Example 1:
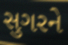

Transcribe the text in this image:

સુગરને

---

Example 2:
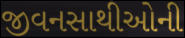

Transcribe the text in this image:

જીવનસાથીઓની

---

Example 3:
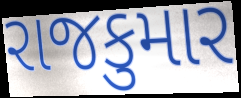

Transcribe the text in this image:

રાજકુમાર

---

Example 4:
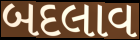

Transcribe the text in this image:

બદલાવ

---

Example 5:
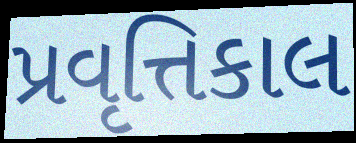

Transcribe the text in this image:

પ્રવૃત્તિકાલ